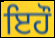
ਇਹੌ